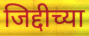
जिद्दीच्या